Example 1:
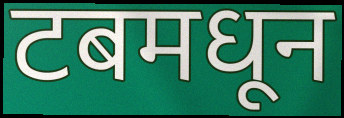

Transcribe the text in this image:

टबमधून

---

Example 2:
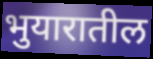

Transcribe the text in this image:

भुयारातील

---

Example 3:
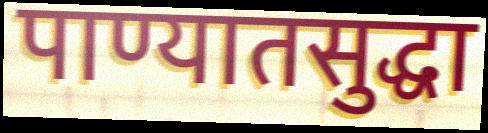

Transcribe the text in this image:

पाण्यातसुद्धा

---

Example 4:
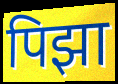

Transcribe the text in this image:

पिझा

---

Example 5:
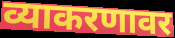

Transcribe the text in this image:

व्याकरणावर